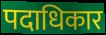
पदाधिकार